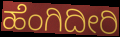
ಹೆಂಗಿದೀರಿ